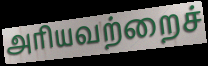
அரியவற்றைச்